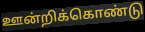
ஊன்றிக்கொண்டு